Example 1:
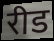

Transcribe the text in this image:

रीड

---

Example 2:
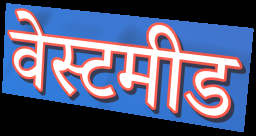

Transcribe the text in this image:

वेस्टमीड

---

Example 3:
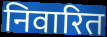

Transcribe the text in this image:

निवारित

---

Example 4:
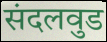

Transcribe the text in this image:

संदलवुड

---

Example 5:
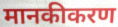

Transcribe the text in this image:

मानकीकरण